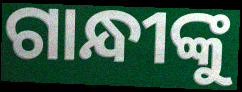
ଗାନ୍ଧୀଙ୍କୁ